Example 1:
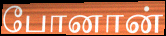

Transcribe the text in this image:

போனான்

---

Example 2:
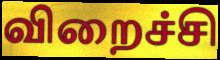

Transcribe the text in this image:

விறைச்சி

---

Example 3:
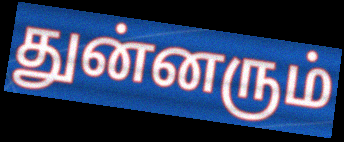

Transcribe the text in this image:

துன்னரும்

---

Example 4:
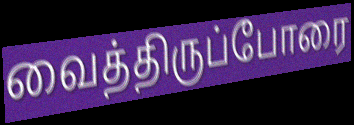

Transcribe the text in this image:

வைத்திருப்போரை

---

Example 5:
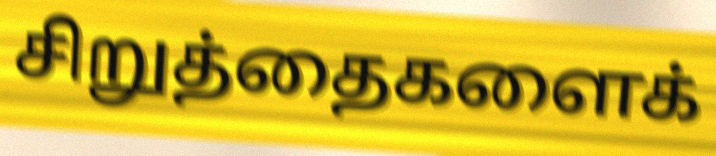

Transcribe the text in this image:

சிறுத்தைகளைக்